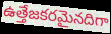
ఉత్తేజకరమైనదిగా